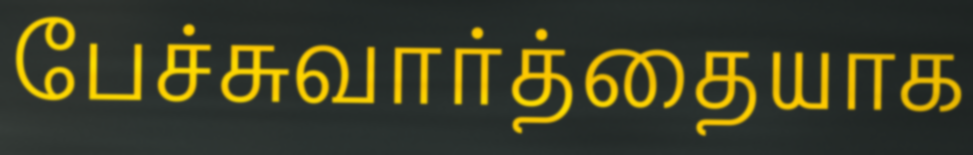
பேச்சுவார்த்தையாக